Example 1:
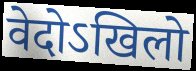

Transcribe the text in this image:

वेदोऽखिलो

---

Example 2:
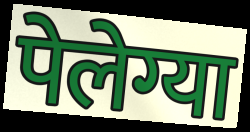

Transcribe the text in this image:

पेलेग्या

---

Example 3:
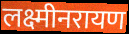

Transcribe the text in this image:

लक्ष्मीनरायण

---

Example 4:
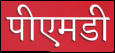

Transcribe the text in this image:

पीएमडी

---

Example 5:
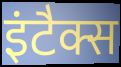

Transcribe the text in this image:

इंटैक्स